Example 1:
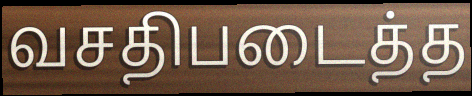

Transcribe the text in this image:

வசதிபடைத்த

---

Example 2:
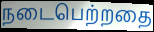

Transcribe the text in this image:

நடைபெற்றதை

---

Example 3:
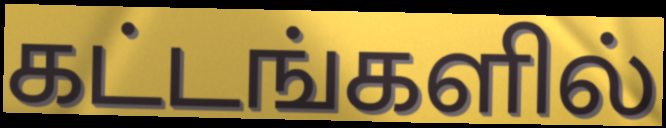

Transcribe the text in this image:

கட்டங்களில்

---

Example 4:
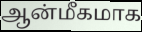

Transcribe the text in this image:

ஆன்மீகமாக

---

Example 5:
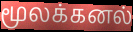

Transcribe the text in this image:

மூலக்கனல்